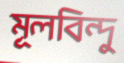
মূলবিন্দু